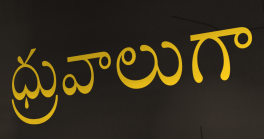
ధ్రువాలుగా